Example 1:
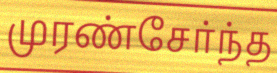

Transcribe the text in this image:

முரண்சேர்ந்த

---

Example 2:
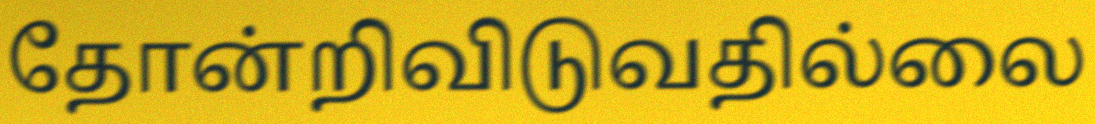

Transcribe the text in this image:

தோன்றிவிடுவதில்லை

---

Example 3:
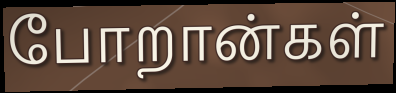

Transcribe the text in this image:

போறான்கள்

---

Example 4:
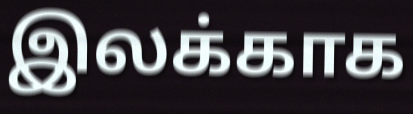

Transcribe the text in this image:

இலக்காக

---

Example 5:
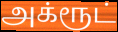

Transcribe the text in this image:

அக்ரூட்